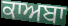
ਕਾਅਬਾ